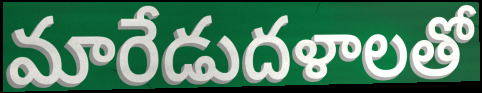
మారేడుదళాలతో